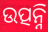
ଉତ୍ପନ୍ନି